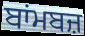
ਬਾਂਮਬਜ਼